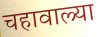
चहावाल्या